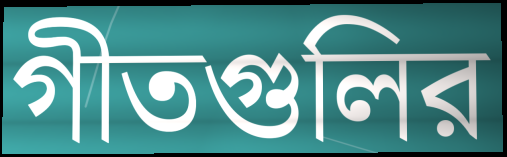
গীতগুলির